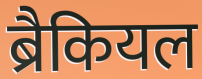
ब्रैकियल